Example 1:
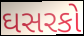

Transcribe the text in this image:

ઘસરકો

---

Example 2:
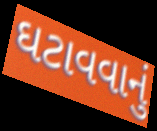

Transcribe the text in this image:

ઘટાવવાનું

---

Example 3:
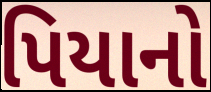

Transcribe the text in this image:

પિયાનો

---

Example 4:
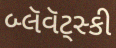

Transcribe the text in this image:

બ્લૅવૅટ્સ્કી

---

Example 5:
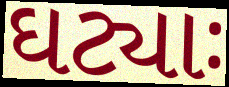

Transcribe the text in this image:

ઘટ્યાઃ